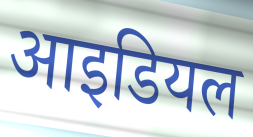
आइडियल